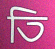
তি